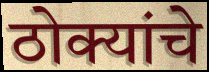
ठोक्यांचे